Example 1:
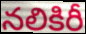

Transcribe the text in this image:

నలికిరీ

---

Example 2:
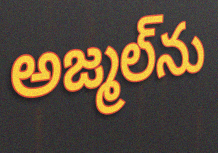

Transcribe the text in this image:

అజ్మల్‌ను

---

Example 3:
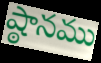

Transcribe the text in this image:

ష్ఠానము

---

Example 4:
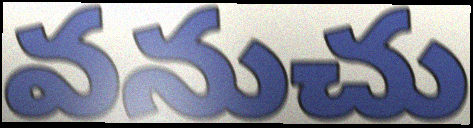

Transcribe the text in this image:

వనుచు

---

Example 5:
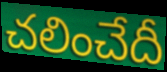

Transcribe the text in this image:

చలించేదీ